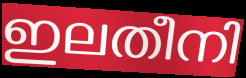
ഇലതീനി